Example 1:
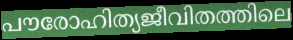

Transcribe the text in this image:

പൗരോഹിത്യജീവിതത്തിലെ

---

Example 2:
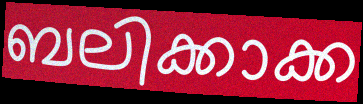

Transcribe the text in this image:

ബലിക്കാക്ക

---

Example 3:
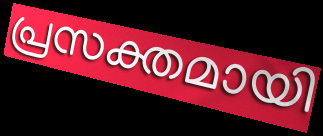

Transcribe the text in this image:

പ്രസക്തമായി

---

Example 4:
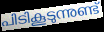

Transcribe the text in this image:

പിടികൂടുന്നുണ്ട്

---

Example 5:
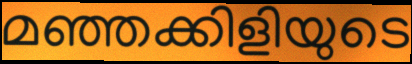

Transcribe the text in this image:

മഞ്ഞക്കിളിയുടെ